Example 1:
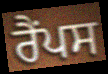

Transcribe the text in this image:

ਰੈਂਪਸ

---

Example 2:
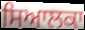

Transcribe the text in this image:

ਸਿਆਲਕਾ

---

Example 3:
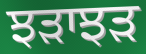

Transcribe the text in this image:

ਝੜਾਝੜ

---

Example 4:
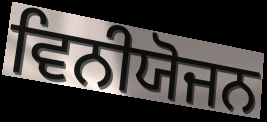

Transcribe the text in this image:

ਵਿਨੀਯੋਜਨ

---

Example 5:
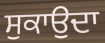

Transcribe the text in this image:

ਸੁਕਾਉਦਾ